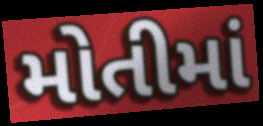
મોતીમાં